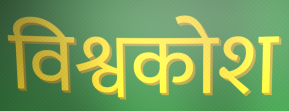
विश्वकोश